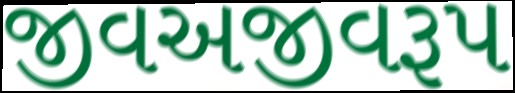
જીવઅજીવરૂપ